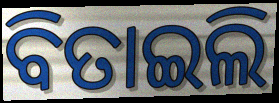
ବିତାଇଲି